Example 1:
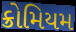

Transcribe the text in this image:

ક્રોમિયમ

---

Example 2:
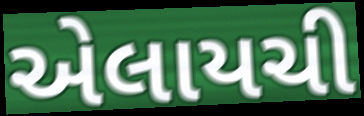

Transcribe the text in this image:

એલાયચી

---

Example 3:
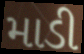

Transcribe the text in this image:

માડી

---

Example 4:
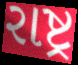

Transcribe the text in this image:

રાષ્ટ્ર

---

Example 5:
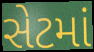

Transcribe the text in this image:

સેટમાં